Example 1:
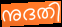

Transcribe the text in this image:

നുദതി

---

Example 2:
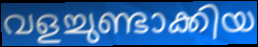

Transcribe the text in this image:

വളച്ചുണ്ടാക്കിയ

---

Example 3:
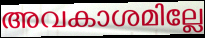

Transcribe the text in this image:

അവകാശമില്ലേ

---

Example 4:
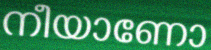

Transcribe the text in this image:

നീയാണോ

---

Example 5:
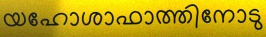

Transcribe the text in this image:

യഹോശാഫാത്തിനോടു